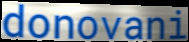
donovani